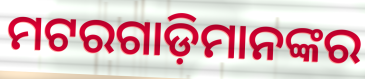
ମଟରଗାଡ଼ିମାନଙ୍କର